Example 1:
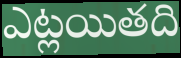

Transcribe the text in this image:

ఎట్లయితది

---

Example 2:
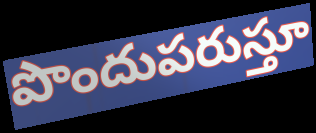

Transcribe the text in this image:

పొందుపరుస్తూ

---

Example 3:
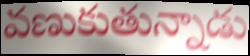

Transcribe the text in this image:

వణుకుతున్నాడు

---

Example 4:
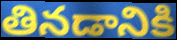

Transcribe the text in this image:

తినడానికి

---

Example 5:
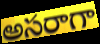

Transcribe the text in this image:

అసరాగా